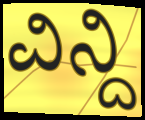
ವಿನ್ದಿ